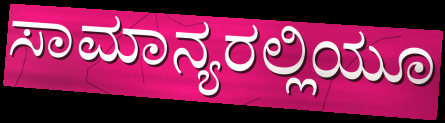
ಸಾಮಾನ್ಯರಲ್ಲಿಯೂ